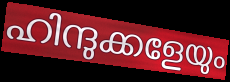
ഹിന്ദുക്കളേയും